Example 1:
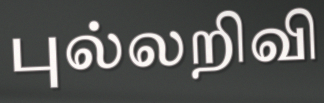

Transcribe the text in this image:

புல்லறிவி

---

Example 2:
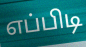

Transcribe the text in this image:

எப்பிடி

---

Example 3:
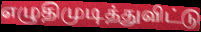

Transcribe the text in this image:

எழுதிமுடித்துவிட்டு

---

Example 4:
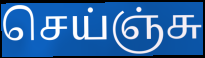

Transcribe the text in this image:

செய்ஞ்சு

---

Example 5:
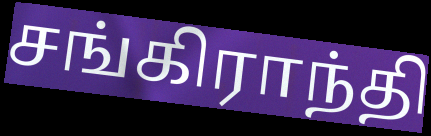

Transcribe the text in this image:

சங்கிராந்தி